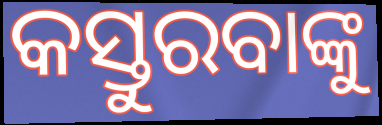
କସ୍ତୁରବାଙ୍କୁ